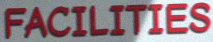
FACILITIES